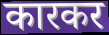
कारकर